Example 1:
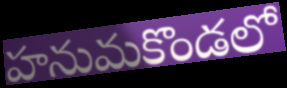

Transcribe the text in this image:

హనుమకొండలో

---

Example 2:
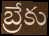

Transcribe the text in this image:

బ్రేకు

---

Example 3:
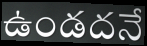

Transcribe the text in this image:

ఉండదనే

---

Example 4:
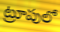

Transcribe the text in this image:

ట్రూపులో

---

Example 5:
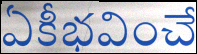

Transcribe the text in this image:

ఏకీభవించే